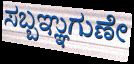
ಸಬ್ಬಞ್ಞುಗುಣೇ